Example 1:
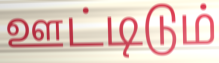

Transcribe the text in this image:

ஊட்டிடும்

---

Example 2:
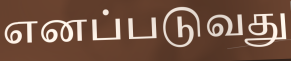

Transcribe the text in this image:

எனப்படுவது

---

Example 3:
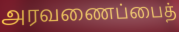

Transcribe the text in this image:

அரவணைப்பைத்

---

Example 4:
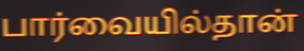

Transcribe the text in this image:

பார்வையில்தான்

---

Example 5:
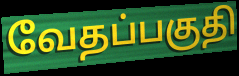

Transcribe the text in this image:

வேதப்பகுதி